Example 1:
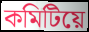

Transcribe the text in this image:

কমিটিয়ে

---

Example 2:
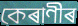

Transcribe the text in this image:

কেৰাণীৰ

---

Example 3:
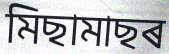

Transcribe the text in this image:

মিছামাছৰ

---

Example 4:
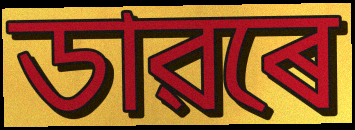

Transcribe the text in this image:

ডাৱৰে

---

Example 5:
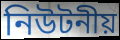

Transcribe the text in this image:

নিউটনীয়